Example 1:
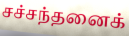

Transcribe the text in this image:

சச்சந்தனைக்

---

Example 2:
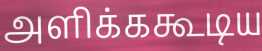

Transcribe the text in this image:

அளிக்ககூடிய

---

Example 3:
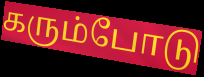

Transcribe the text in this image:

கரும்போடு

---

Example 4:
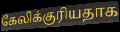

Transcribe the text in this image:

கேலிக்குரியதாக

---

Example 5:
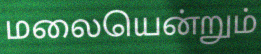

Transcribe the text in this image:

மலையென்றும்